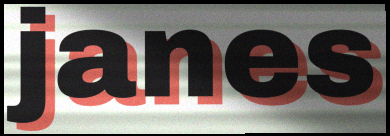
janes